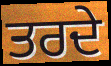
ਤਰਦੇ